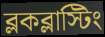
ব্লকব্লাস্টিং